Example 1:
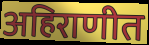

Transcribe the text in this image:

अहिराणीत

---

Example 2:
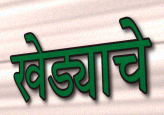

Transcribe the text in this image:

खेड्याचे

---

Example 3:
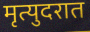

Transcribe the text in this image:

मृत्युदरात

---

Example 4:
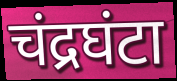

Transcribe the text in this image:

चंद्रघंटा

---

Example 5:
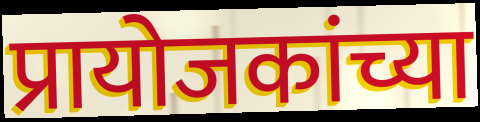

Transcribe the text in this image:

प्रायोजकांच्या